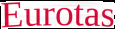
Eurotas